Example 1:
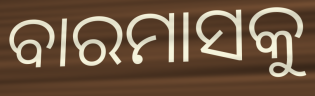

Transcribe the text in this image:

ବାରମାସକୁ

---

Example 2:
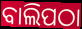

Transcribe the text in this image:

ବାଲିପଠା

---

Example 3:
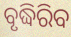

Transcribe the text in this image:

ବୃଦ୍ଧିରିବ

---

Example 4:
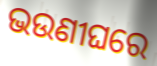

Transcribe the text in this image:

ଭଉଣୀଘରେ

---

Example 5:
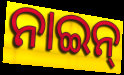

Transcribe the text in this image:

ନାଇନ୍